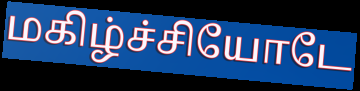
மகிழ்ச்சியோடே